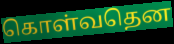
கொள்வதென